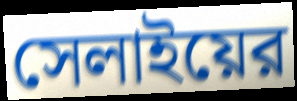
সেলাইয়ের